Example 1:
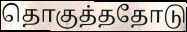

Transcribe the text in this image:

தொகுத்ததோடு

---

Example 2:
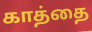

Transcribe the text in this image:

காத்தை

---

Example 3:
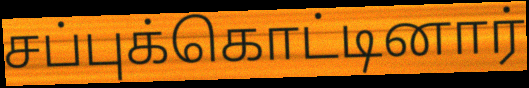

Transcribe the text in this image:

சப்புக்கொட்டினார்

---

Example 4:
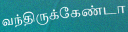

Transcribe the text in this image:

வந்திருக்கேண்டா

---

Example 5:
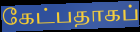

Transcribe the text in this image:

கேட்பதாகப்